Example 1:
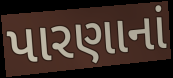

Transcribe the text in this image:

પારણાનાં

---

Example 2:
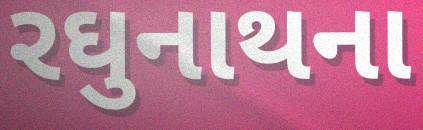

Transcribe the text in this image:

રઘુનાથના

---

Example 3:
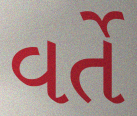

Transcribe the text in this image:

વર્તે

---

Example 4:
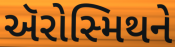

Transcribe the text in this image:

ઍરોસ્મિથને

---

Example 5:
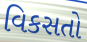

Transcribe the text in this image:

વિકસતો